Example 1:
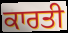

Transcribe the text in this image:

ਕਾਰਤੀ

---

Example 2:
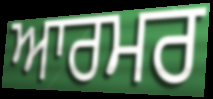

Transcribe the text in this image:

ਆਰਮਰ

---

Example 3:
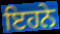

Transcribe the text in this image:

ਇਹਨੇ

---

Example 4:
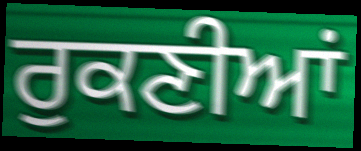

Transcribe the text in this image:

ਰੁਕਣੀਆਂ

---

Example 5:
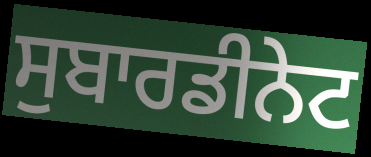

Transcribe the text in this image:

ਸੁਬਾਰਡੀਨੇਟ